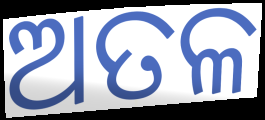
ଅତଳ